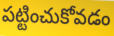
పట్టించుకోవడం